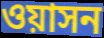
ওয়াসন